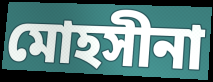
মোহসীনা